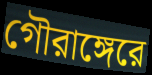
গৌরাঙ্গেরে